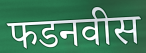
फडनवीस